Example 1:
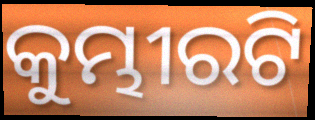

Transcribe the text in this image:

କୁମ୍ଭୀରଟି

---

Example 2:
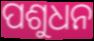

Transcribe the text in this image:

ପଶୁଧନ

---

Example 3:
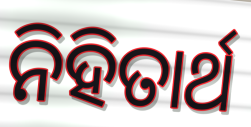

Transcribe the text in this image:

ନିହିତାର୍ଥ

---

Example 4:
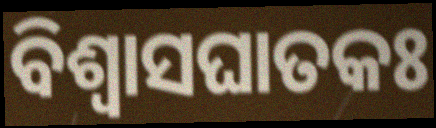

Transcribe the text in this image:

ବିଶ୍ୱାସଘାତକଃ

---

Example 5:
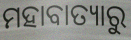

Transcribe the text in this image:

ମହାବାତ୍ୟାରୁ